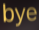
bye